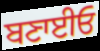
ਬਣਾਈਓ